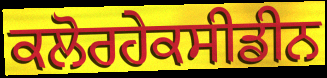
ਕਲੋਰਹੇਕਸੀਡੀਨ